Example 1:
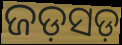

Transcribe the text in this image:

ଜଡ଼ସଡ଼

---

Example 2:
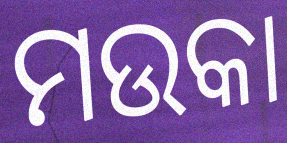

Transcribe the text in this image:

ମଉକା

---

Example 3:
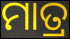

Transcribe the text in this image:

ମାତ୍ର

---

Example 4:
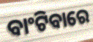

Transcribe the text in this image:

ବାଂଟିବାରେ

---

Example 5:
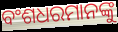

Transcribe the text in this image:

ବଂଶଧରମାନଙ୍କୁ